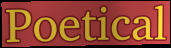
Poetical